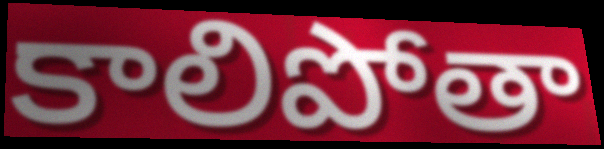
కాలిపోతా